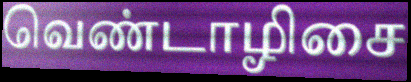
வெண்டாழிசை